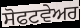
ਸੋਫਟਵੇਅਰ